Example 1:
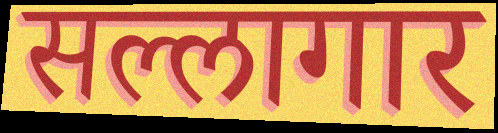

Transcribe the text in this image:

सल्लागार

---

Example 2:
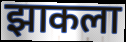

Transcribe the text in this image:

झाकला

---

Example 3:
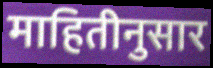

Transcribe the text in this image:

माहितीनुसार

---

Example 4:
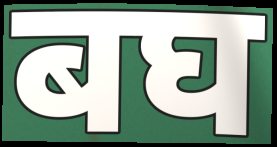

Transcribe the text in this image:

बघ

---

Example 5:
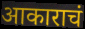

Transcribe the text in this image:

आकाराचं